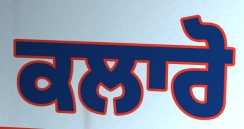
ਕਲਾਰੋ